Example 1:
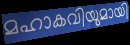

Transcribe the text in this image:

മഹാകവിയുമായി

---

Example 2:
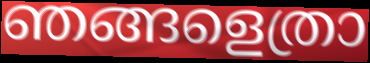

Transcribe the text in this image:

ഞങ്ങളെത്രാ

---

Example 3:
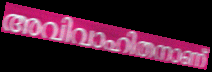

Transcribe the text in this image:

അവിവാഹിതനാണ്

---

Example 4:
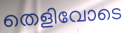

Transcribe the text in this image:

തെളിവോടെ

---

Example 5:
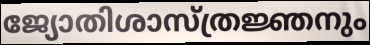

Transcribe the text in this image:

ജ്യോതിശാസ്ത്രജ്ഞനും